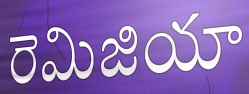
రెమిజియా